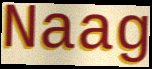
Naag